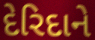
દેરિદાને